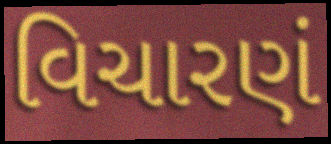
વિચારણં